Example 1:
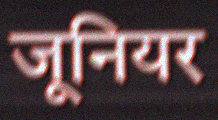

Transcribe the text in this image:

जूनियर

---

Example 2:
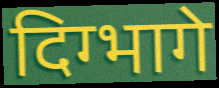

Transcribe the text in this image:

दिग्भागे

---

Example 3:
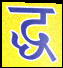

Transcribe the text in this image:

द्ध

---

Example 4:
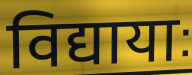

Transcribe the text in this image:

विद्यायाः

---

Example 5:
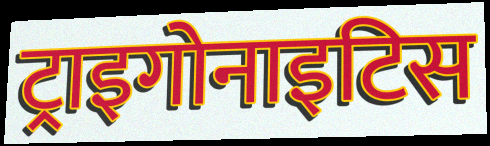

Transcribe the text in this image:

ट्राइगोनाइटिस